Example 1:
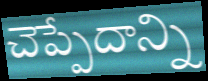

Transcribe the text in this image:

చెప్పేదాన్ని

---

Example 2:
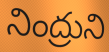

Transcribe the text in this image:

నింద్రుని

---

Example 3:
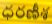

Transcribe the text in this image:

ధరణీశ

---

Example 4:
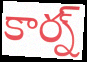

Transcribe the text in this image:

కార్న్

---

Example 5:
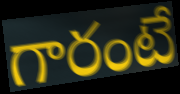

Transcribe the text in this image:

గారంటే